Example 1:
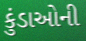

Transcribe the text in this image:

કુંડાઓની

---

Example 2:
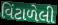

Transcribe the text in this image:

વિંટાળેલી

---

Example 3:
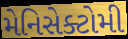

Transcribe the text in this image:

મેનિસેક્ટોમી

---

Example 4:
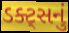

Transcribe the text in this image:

ડક્ટ્સનું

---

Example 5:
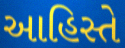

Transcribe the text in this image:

આહિસ્તે